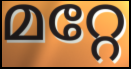
മറ്റേ